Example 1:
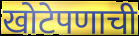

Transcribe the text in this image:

खोटेपणाची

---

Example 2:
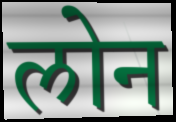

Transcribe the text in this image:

लोन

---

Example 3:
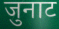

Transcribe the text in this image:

जुनाट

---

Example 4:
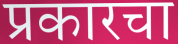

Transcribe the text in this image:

प्रकारचा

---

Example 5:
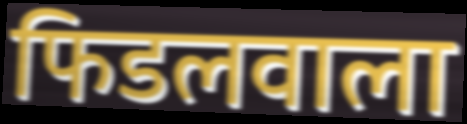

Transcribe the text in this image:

फिडलवाला